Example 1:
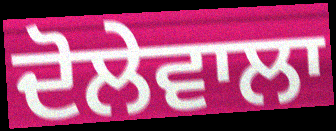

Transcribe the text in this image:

ਦੋਲੇਵਾਲਾ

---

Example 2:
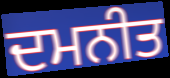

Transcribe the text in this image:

ਦਮਨੀਤ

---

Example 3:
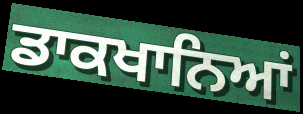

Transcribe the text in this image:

ਡਾਕਖਾਨਿਆਂ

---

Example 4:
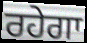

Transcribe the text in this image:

ਰਹੇਗਾ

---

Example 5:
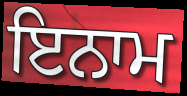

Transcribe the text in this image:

ਇਨਾਮ